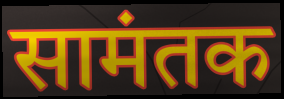
सामंतक